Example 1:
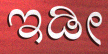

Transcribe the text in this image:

ಇಡೀ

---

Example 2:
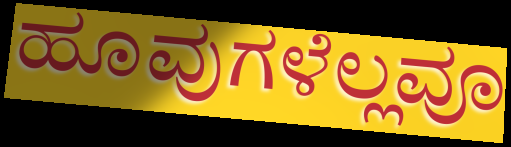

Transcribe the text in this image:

ಹೂವುಗಳೆಲ್ಲವೂ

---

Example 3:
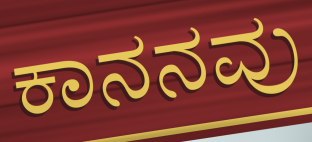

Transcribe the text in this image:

ಕಾನನವು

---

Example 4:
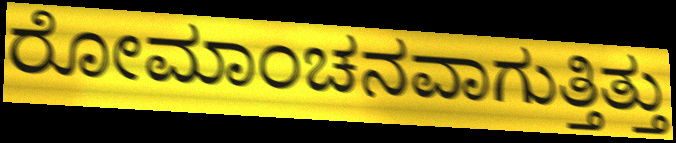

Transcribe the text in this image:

ರೋಮಾಂಚನವಾಗುತ್ತಿತ್ತು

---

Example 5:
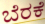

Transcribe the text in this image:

ಬೆರಕೆ